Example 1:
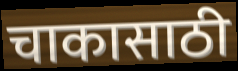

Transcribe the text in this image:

चाकासाठी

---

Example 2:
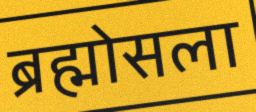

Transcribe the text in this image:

ब्रह्मोसला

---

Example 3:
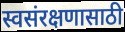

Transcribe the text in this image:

स्वसंरक्षणासाठी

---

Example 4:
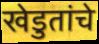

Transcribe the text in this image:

खेडुतांचे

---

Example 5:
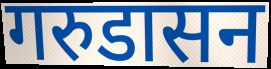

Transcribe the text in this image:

गरुडासन